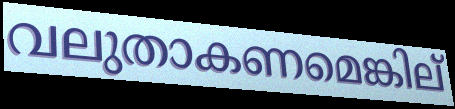
വലുതാകണമെങ്കില്